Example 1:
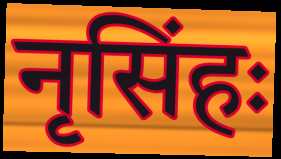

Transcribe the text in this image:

नृसिंहः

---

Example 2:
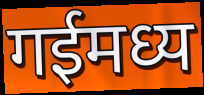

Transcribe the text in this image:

गईमध्य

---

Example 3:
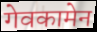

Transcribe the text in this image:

गेवकामेन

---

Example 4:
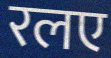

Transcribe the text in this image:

रलए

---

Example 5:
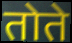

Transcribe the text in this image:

तोते